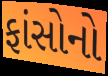
ફાંસોનો